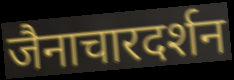
जैनाचारदर्शन